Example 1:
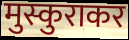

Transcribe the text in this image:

मुस्‍कुराकर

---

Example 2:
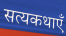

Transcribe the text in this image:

सत्यकथाएँ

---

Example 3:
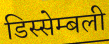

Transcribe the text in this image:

डिस्सेम्बली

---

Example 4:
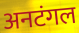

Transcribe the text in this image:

अनटंगल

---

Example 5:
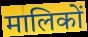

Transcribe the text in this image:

मालिकों